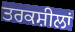
ਤਰਕਸ਼ੀਲਾਂ